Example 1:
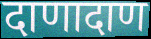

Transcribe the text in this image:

दाणादाण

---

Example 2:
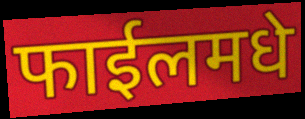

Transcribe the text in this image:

फाईलमधे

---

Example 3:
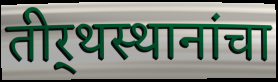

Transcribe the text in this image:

तीर्थस्थानांचा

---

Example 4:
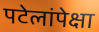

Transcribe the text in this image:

पटेलांपेक्षा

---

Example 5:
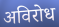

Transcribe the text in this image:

अविरोध